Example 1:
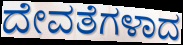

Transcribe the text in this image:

ದೇವತೆಗಳಾದ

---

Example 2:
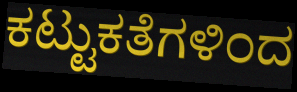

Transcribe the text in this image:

ಕಟ್ಟುಕತೆಗಳಿಂದ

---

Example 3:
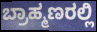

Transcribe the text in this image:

ಬ್ರಾಹ್ಮಣರಲ್ಲಿ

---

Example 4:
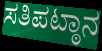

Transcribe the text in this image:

ಸತಿಪಟ್ಠಾನ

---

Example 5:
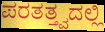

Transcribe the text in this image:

ಪರತತ್ತ್ವದಲ್ಲಿ